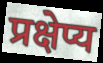
प्रक्षेप्य